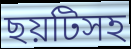
ছয়টিসহ